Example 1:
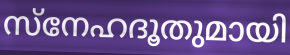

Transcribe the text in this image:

സ്നേഹദൂതുമായി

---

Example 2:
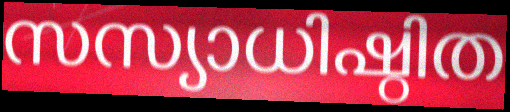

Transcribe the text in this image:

സസ്യാധിഷ്ഠിത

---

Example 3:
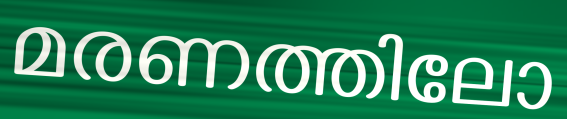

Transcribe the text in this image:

മരണത്തിലോ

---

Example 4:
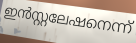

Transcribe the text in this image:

ഇൻസ്റ്റലേഷനെന്ന്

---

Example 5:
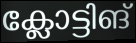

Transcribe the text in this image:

ക്ലോട്ടിങ്